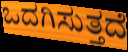
ಒದಗಿಸುತ್ತದೆ